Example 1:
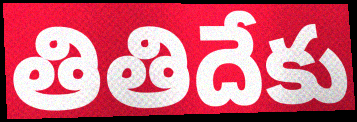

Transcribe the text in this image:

తితిదేకు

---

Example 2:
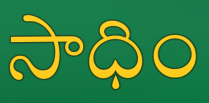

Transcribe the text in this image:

సాధిం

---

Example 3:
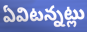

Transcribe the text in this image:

ఏవిటన్నట్లు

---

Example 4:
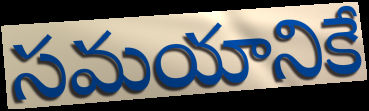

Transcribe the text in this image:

సమయానికే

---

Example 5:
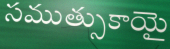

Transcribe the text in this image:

సముత్సుకాయై